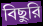
বিছুরি